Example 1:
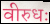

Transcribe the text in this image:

वीरुधः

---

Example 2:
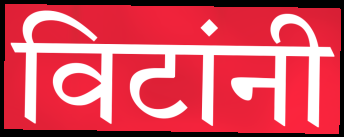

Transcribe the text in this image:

विटांनी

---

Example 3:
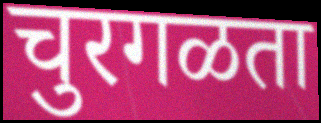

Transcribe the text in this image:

चुरगळता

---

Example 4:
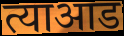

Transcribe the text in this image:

त्याआड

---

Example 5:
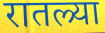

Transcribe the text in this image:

रातल्या